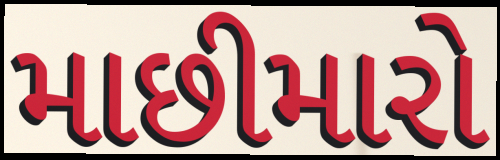
માછીમારો